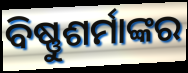
ବିଷ୍ଣୁଶର୍ମାଙ୍କର